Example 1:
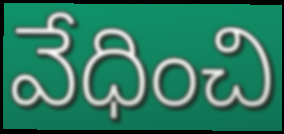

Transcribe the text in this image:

వేధించి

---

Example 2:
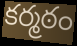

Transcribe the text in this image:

కర్మఠం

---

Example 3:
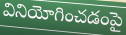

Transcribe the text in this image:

వినియోగించడంపై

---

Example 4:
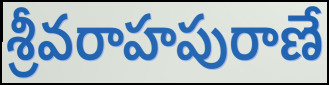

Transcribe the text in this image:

శ్రీవరాహపురాణే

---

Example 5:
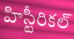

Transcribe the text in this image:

హిస్టీరికల్